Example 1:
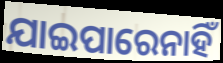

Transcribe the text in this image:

ଯାଇପାରେନାହିଁ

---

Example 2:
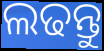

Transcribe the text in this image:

ଲଢନ୍ତୁ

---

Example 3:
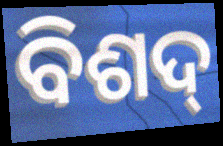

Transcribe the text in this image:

ବିଶଦ୍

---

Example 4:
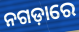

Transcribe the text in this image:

ନଗଡ଼ାରେ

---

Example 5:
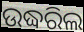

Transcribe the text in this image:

ଉଦ୍ଧରିଲ